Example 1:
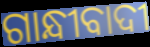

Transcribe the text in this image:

ଗାନ୍ଧୀବାଦୀ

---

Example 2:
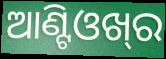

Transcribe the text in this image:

ଆଣ୍ଟିଓଖ୍‍ର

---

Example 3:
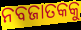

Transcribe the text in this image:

ନବଜାତକକୁ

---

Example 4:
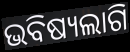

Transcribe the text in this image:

ଭବିଷ୍ୟଲାଗି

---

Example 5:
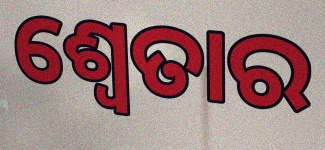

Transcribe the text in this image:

ଶ୍ଵେତାର